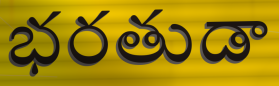
భరతుడా